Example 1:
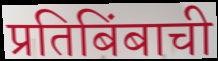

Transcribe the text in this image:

प्रतिबिंबाची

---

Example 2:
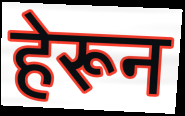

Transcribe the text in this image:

हेरून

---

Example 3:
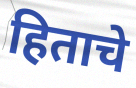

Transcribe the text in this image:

हिताचे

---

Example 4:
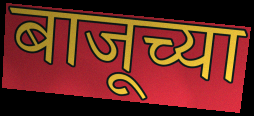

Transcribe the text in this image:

बाजूच्या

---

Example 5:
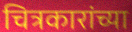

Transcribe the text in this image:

चित्रकारांच्या